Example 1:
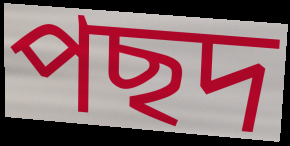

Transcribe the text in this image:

পছদ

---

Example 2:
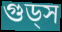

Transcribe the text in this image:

গুড্স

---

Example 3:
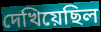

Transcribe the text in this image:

দেখিয়েছিল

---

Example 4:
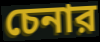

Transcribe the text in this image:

চেনার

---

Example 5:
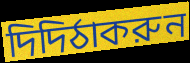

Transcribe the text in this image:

দিদিঠাকরুন